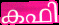
കഫി